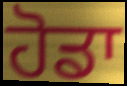
ਹੋਡਾ